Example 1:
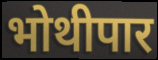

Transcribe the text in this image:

भोथीपार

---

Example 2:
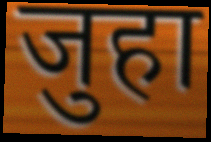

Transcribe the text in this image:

जुहा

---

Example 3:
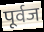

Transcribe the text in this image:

पूर्वज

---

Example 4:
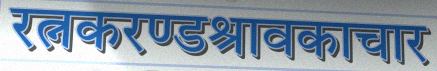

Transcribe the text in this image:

रत्नकरण्डश्रावकाचार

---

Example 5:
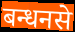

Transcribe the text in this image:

बन्धनसे